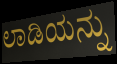
ಲಾಡಿಯನ್ನು